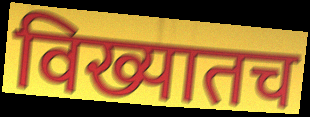
विख्यातच